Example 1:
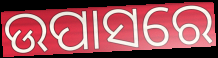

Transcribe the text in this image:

ଉପାସରେ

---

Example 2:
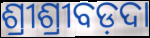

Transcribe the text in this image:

ଶ୍ରୀଶ୍ରୀବଡ଼ଦା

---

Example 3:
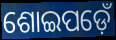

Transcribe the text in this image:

ଶୋଇପଡ଼େଁ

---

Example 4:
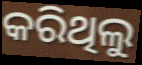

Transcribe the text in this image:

କରିଥିଲୁ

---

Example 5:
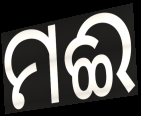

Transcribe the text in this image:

ମଈ